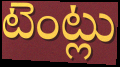
టెంట్లు